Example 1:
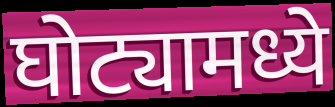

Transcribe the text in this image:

घोट्यामध्ये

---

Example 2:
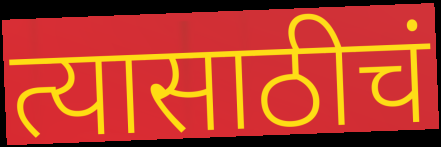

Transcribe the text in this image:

त्यासाठीचं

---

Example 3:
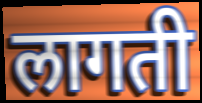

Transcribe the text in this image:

लागती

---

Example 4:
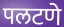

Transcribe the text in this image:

पलटणे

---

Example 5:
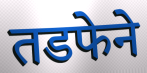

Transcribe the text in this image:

तडफेने